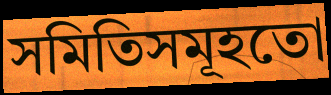
সমিতিসমূহতো